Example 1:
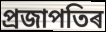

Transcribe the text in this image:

প্ৰজাপতিৰ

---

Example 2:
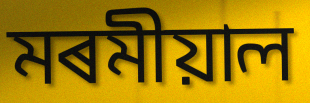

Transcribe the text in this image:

মৰমীয়াল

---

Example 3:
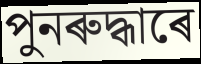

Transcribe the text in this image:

পুনৰুদ্ধাৰে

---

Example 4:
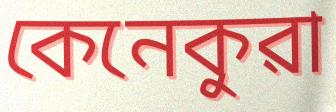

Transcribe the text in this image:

কেনেকুৱা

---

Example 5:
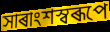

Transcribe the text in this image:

সাৰাংশস্বৰূপে